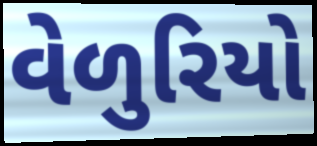
વેળુરિયો